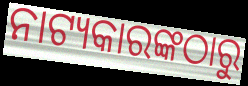
ନାଟ୍ୟକାରଙ୍କଠାରୁ